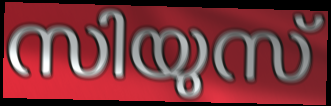
സിയുസ്